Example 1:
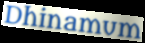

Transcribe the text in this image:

Dhinamum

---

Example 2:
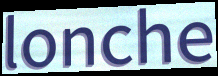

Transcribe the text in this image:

lonche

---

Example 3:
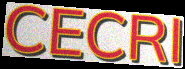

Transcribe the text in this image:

CECRI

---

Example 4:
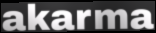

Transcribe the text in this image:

akarma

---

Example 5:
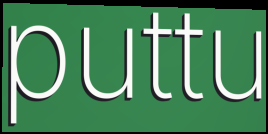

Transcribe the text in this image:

puttu